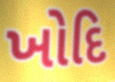
ખોદિ